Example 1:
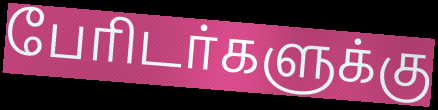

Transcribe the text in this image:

பேரிடர்களுக்கு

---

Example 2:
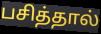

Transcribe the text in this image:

பசித்தால்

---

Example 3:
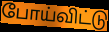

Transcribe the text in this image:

போய்விட்டு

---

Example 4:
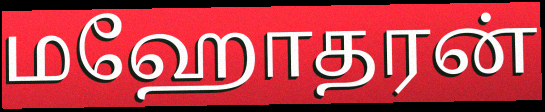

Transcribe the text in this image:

மஹோதரன்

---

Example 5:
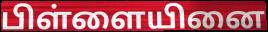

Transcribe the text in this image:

பிள்ளையினை